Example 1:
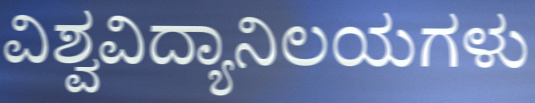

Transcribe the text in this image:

ವಿಶ್ವವಿದ್ಯಾನಿಲಯಗಳು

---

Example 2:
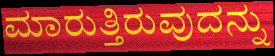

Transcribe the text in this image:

ಮಾರುತ್ತಿರುವುದನ್ನು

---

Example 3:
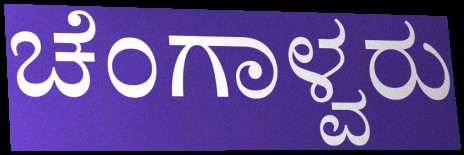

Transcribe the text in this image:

ಚೆಂಗಾಳ್ವರು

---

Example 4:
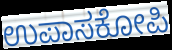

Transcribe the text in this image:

ಉಪಾಸಕೋಪಿ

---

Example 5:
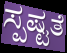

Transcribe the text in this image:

ಸ್ಪಷ್ಟತೆ